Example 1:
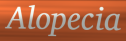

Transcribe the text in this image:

Alopecia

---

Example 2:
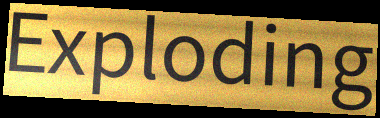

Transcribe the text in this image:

Exploding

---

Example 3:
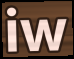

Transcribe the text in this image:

iw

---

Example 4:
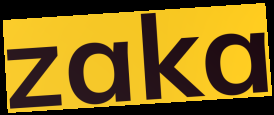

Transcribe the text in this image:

zaka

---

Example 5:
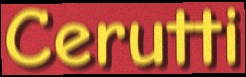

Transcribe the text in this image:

Cerutti